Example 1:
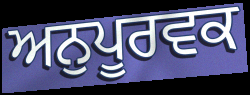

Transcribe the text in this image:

ਅਨੁਪੂਰਵਕ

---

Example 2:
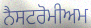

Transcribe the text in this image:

ਨੈਸਟਰੋਮੀਅਮ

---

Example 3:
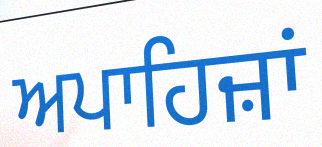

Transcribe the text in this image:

ਅਪਾਹਿਜ਼ਾਂ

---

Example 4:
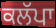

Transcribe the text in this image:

ਕਲੱਪਾ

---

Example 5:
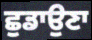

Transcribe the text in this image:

ਛੁਡਾਉਣਾ